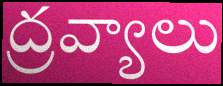
ద్రవ్యాలు